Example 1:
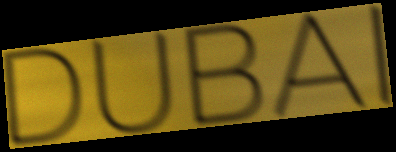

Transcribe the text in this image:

DUBAI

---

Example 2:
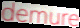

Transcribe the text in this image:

demure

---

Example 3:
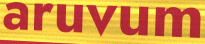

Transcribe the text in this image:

aruvum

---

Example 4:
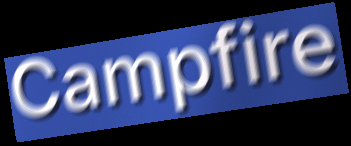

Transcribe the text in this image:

Campfire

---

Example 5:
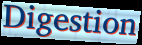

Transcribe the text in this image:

Digestion